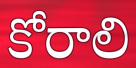
కోరాలి